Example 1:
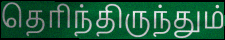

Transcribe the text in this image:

தெரிந்திருந்தும்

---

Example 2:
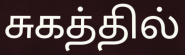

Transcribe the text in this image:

சுகத்தில்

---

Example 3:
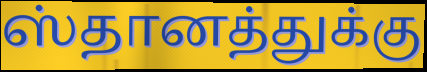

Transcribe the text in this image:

ஸ்தானத்துக்கு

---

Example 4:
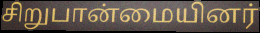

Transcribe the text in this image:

சிறுபான்மையினர்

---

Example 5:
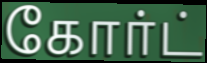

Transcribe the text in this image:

கோர்ட்